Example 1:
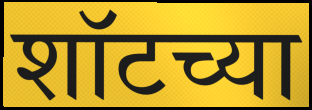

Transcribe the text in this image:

शॉटच्या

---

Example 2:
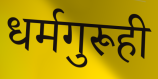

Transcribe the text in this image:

धर्मगुरूही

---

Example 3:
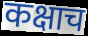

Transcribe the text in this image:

कक्षाच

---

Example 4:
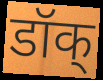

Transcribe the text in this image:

डॉक्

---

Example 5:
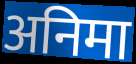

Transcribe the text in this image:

अनिमा